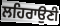
ਲਹਿਰਾਉਣੀ